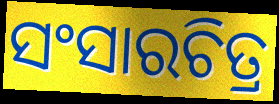
ସଂସାରଚିତ୍ର